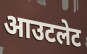
आउटलेट